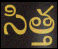
సిత్త